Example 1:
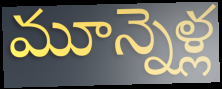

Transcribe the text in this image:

మూన్నెళ్ల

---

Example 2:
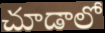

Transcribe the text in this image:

చూడాలో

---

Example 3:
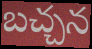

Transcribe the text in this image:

బచ్చన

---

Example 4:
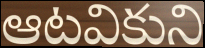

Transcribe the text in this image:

ఆటవికుని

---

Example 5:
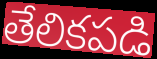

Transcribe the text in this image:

తేలికపడి